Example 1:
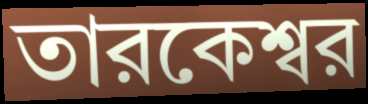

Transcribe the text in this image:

তারকেশ্বর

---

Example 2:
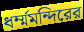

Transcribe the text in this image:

ধর্ম্মমন্দিরের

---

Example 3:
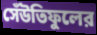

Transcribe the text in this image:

সেঁউতিফুলের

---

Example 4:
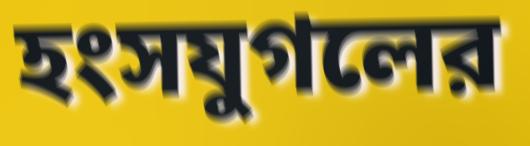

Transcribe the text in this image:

হংসযুগলের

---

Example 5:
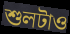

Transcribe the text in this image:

শুলটাও